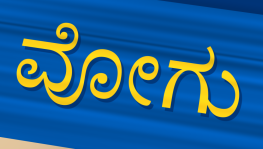
ವೋಗು